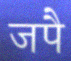
जपै